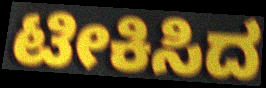
ಟೀಕಿಸಿದ